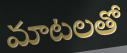
మాటలతో